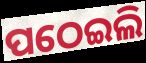
ପଠେଇଲି